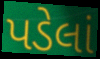
પડેલાં